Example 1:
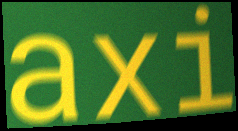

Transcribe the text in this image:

axi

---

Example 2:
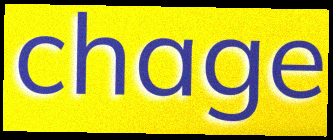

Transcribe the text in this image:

chage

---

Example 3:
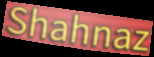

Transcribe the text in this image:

Shahnaz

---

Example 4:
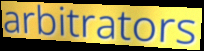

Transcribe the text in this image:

arbitrators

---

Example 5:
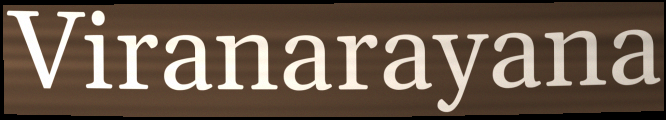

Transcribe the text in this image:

Viranarayana